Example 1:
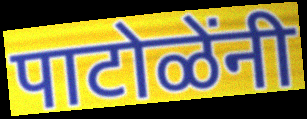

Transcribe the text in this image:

पाटोळेंनी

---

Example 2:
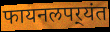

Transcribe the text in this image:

फायनलपर्यंत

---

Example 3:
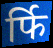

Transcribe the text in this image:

र्फि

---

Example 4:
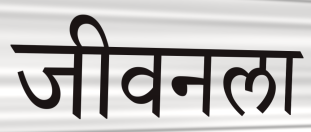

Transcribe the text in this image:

जीवनला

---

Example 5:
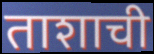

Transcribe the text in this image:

ताशाची